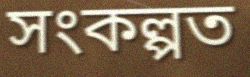
সংকল্পত